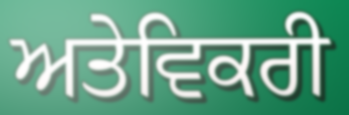
ਅਤੇਵਿਕਰੀ